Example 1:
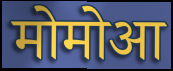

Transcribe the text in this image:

मोमोआ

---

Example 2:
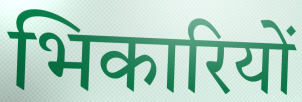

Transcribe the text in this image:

भिकारियों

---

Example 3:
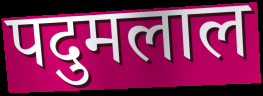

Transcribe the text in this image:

पदुमलाल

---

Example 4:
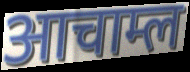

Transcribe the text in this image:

आचाम्ल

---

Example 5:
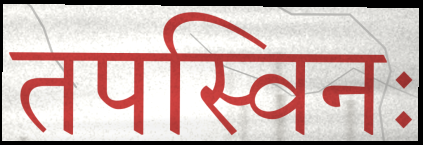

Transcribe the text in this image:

तपस्विनः